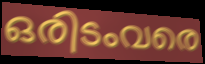
ഒരിടംവരെ